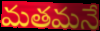
మతమనే